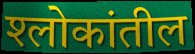
श्लोकांतील